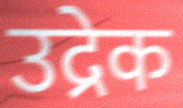
उद्रेक